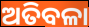
ଅତିବଳା